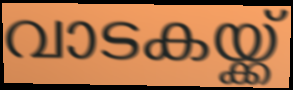
വാടകയ്ക്ക്